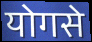
योगसे